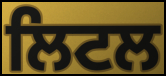
ਲਿਟਲ